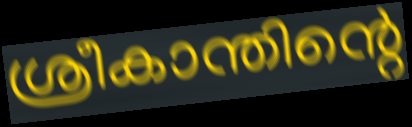
ശ്രീകാന്തിന്റെ